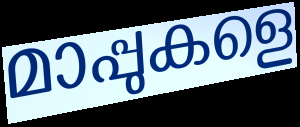
മാപ്പുകളെ